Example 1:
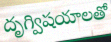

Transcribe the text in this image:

దృగ్విషయాలతో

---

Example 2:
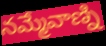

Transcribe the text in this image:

నమ్మేవాణ్ని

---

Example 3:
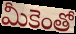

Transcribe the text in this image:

మీకెంతో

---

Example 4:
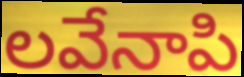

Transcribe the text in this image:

లవేనాపి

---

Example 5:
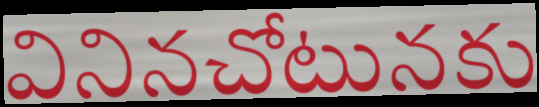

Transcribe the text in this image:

వినినచోటునకు